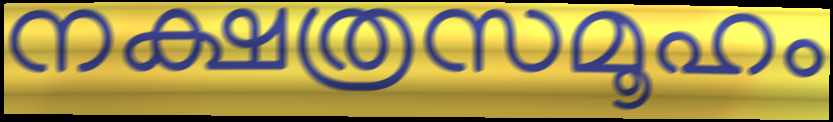
നക്ഷത്രസമൂഹം